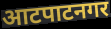
आटपाटनगर